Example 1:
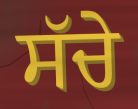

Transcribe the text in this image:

ਸੱਚੇ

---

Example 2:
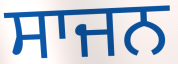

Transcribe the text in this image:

ਸਾਜਨ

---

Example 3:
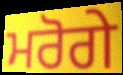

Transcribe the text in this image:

ਮਰੋਗੇ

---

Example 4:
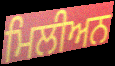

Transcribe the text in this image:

ਮਿਲੀਅਨ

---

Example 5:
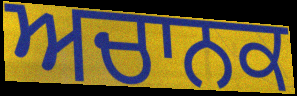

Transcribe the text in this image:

ਅਚਾਨਕ